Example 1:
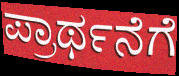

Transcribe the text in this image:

ಪ್ರಾರ್ಥನೆಗೆ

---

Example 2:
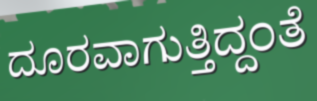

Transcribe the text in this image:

ದೂರವಾಗುತ್ತಿದ್ದಂತೆ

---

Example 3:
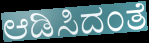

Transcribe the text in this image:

ಆಡಿಸಿದಂತೆ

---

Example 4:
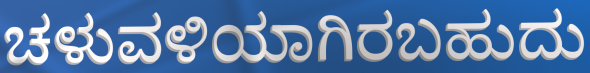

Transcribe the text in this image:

ಚಳುವಳಿಯಾಗಿರಬಹುದು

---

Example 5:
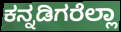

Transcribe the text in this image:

ಕನ್ನಡಿಗರೆಲ್ಲಾ